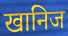
खानिज